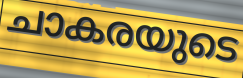
ചാകരയുടെ